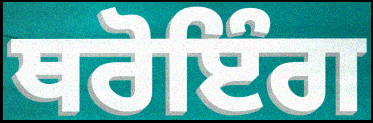
ਥਰੋਇੰਗ